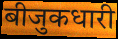
बीजुकधारी